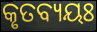
କୃତବ୍ୟୟଃ